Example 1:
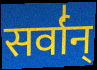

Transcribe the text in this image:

सर्वा॑न्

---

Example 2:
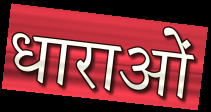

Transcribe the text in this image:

धाराओं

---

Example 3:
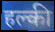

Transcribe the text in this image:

हल्की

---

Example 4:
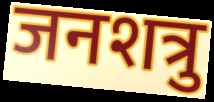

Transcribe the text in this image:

जनशत्रु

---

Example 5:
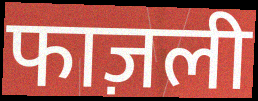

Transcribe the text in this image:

फाज़ली